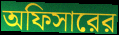
অফিসারের